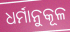
ଧର୍ମାନୁକୂଳ